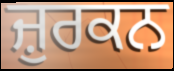
ਜ਼ੁਰਕਨ